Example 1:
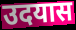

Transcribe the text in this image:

उदयास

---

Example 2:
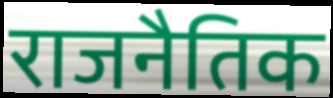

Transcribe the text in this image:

राजनैतिक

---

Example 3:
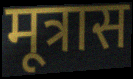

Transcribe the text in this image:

मूत्रास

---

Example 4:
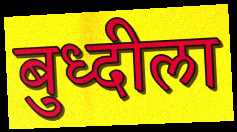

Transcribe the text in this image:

बुध्दीला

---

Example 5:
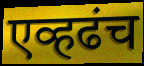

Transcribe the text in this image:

एव्हढंच